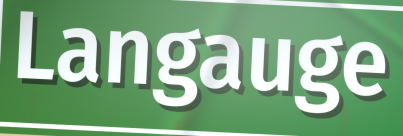
Langauge